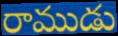
రాముడు